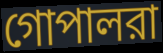
গোপালরা